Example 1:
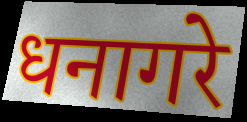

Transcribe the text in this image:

धनागरे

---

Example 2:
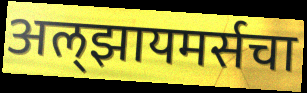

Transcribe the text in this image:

अल्झायमर्सचा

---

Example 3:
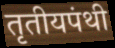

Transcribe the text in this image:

तृतीयपंथी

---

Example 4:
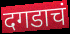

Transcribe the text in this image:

दगडाचं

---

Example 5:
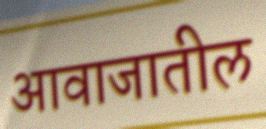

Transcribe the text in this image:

आवाजातील